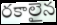
రకాలైన